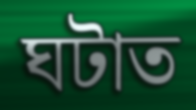
ঘটাত